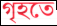
গৃহতে